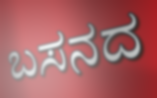
ಬಸನದ